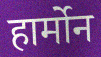
हार्मोन